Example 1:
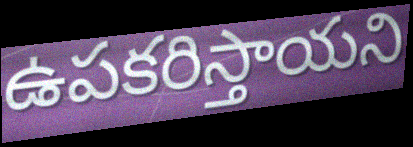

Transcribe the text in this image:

ఉపకరిస్తాయని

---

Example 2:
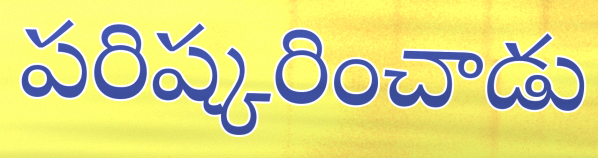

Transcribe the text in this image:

పరిష్కరించాడు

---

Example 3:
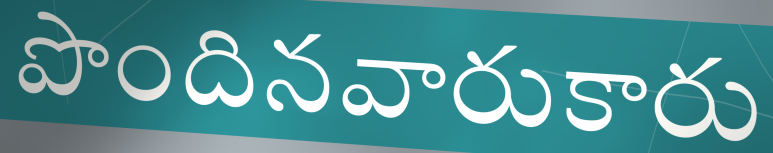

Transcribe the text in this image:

పొందినవారుకారు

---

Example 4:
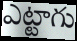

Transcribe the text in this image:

ఎట్టాగు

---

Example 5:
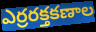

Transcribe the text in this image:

ఎర్రరక్తకణాల